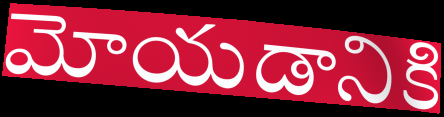
మోయడానికి